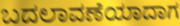
ಬದಲಾವಣೆಯಾದಾಗ